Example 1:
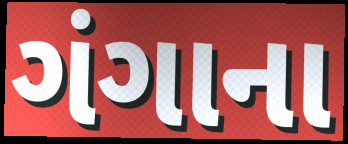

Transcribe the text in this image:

ગંગાના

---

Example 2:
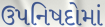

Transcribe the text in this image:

ઉપનિષદોમાં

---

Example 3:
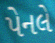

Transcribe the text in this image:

પેનલે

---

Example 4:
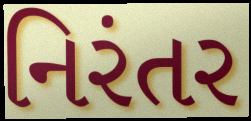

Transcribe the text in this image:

નિરંતર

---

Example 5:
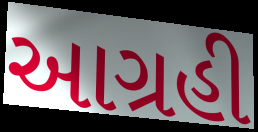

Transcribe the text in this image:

આગ્રહી